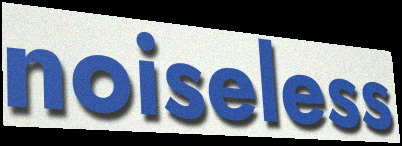
noiseless